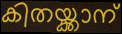
കിതയ്ക്കാന്